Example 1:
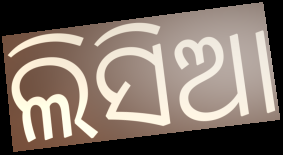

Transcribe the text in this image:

ଲିସିଆ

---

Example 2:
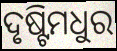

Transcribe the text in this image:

ଦୃଷ୍ଟିମଧୁର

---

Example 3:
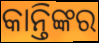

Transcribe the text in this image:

କାନ୍ତିଙ୍କର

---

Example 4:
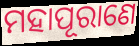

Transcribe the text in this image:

ମହାପୂରାଣେ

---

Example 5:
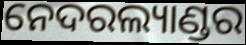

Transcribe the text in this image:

ନେଦରଲ୍ୟାଣ୍ଡର